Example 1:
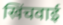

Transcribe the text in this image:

खिंचवाई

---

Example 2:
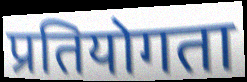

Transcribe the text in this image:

प्रतियोगता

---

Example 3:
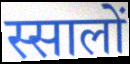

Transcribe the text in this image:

स्सालों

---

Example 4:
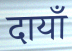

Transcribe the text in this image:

दायाँ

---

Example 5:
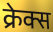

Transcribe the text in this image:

क्रेक्स